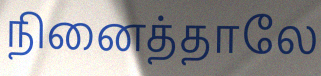
நினைத்தாலே